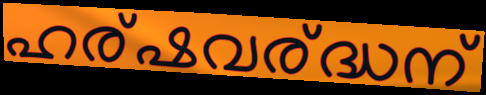
ഹര്ഷവര്ദ്ധന്